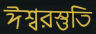
ঈশ্বরস্তুতি